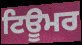
ਟਿਊਮਰ